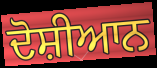
ਦੋਸ਼ੀਆਨ